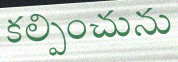
కల్పించును